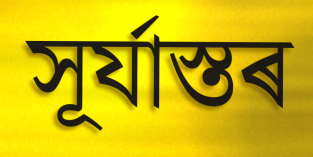
সূৰ্যাস্তৰ